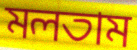
মলতাম